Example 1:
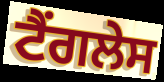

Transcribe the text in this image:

ਟੈਂਗਲੇਸ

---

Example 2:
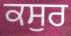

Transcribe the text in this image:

ਕਸੁਰ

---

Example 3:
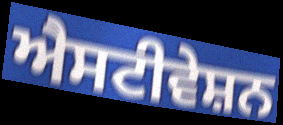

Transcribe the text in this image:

ਐਸਟੀਵੇਸ਼ਨ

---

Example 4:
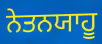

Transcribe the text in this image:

ਨੇਤਨਯਾਹੂ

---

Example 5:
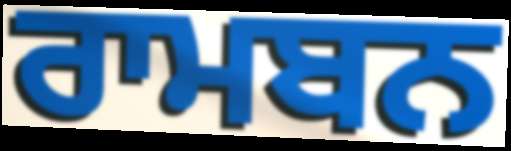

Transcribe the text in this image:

ਰਾਮਬਨ